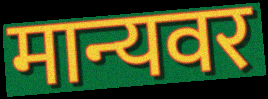
मान्‍यवर